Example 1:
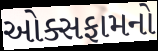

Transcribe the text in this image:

ઓક્સફામનો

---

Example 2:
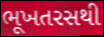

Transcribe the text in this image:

ભૂખતરસથી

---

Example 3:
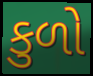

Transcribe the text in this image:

કુળો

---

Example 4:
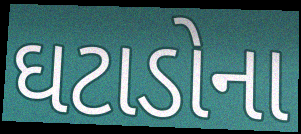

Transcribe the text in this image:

ઘટાડોના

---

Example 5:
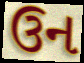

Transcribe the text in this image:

ઉન